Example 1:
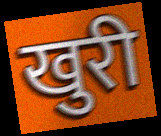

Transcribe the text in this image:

खुरी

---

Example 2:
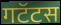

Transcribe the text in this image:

गटॅटस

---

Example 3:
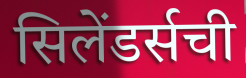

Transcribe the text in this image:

सिलेंडर्सची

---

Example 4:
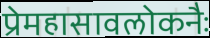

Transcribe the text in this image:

प्रेमहासावलोकनैः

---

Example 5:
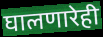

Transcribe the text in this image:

घालणारेही